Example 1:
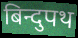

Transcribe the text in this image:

बिन्दुपथ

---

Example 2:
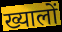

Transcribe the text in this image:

ख्यालों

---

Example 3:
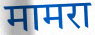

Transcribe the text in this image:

मामरा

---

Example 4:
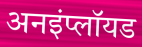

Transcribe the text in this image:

अनइंप्लॉयड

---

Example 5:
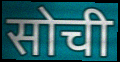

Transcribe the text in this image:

सोची